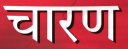
चारण